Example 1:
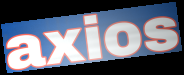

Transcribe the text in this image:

axios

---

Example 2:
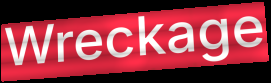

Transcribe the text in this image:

Wreckage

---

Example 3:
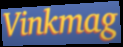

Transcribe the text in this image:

Vinkmag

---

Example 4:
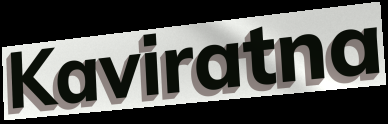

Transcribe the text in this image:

Kaviratna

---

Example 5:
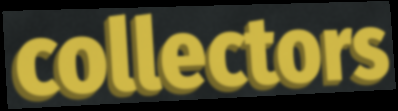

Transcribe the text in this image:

collectors